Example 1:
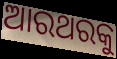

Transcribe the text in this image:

ଆରଥରକୁ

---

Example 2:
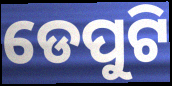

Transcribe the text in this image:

ଡେପୁଟି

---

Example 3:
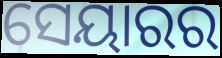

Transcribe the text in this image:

ସେୟାରର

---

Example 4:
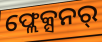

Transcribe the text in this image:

ଫ୍ଲେକ୍ସନର୍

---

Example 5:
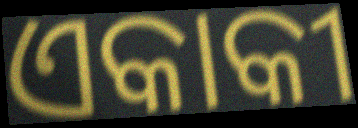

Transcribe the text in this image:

ଏକାକୀ